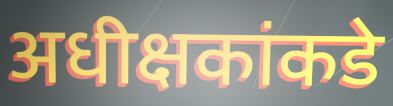
अधीक्षकांकडे